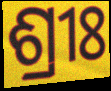
ଶ୍ରୀଃ